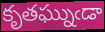
కృతఘ్నుఁడా